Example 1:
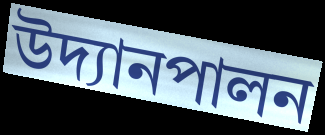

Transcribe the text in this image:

উদ্যানপালন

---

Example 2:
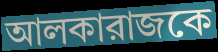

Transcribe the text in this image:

আলকারাজকে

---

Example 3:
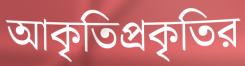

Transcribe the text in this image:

আকৃতিপ্রকৃতির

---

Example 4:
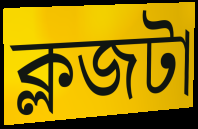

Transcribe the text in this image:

ক্লজটা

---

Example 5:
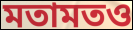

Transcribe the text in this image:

মতামতও